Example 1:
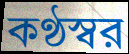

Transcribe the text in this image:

কণ্ঠস্বর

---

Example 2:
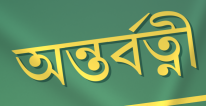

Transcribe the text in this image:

অন্তর্বত্নী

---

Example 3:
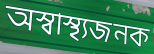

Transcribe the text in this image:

অস্বাস্থ্যজনক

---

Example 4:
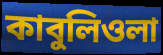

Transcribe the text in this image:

কাবুলিওলা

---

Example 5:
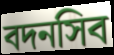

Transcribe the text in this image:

বদনসিব